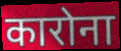
कारोना